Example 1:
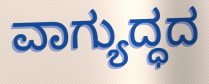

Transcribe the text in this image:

ವಾಗ್ಯುದ್ಧದ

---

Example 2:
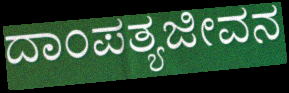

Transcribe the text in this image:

ದಾಂಪತ್ಯಜೀವನ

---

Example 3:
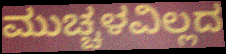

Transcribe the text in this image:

ಮುಚ್ಚಳವಿಲ್ಲದ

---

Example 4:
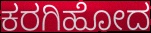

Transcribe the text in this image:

ಕರಗಿಹೋದ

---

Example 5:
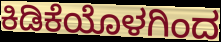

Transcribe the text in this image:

ಕಿಡಿಕೆಯೊಳಗಿಂದ